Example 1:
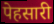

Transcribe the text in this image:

पेहसारी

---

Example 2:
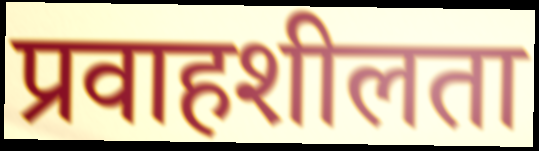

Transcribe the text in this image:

प्रवाहशीलता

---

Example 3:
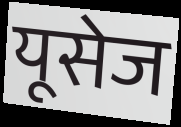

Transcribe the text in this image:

यूसेज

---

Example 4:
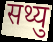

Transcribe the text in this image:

सथ्यु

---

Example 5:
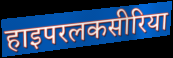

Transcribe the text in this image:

हाइपरलकसीरिया